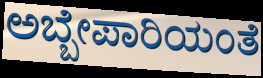
ಅಬ್ಬೇಪಾರಿಯಂತೆ